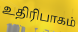
உதிரிபாகம்